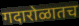
गदारोळातच